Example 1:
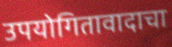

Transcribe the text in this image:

उपयोगितावादाचा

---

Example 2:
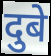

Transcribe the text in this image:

दुबे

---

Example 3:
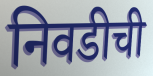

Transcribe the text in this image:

निवडीची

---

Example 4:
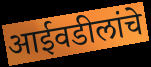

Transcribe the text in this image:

आईवडीलांचे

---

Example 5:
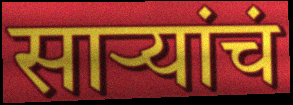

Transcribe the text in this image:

साऱ्यांचं